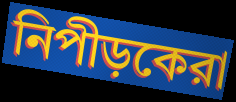
নিপীড়কেরা